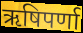
ऋषिपर्णा